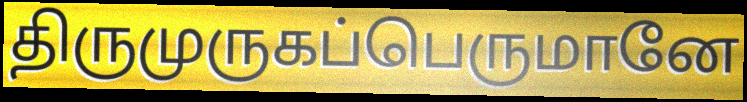
திருமுருகப்பெருமானே